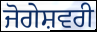
ਜੋਗੇਸ਼ਵਰੀ